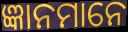
ଜ୍ଞାନମାନେ